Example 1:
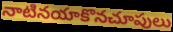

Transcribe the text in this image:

నాటినయాకొనచూపులు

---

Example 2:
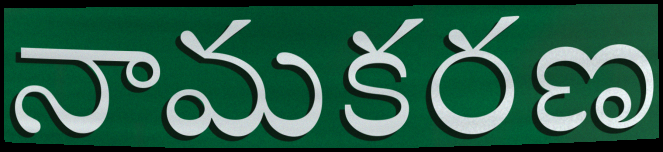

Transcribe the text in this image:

నామకరణ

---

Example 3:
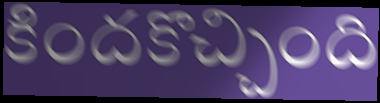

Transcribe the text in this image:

కిందకొచ్చింది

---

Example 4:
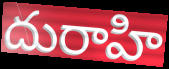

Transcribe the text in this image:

దురాహి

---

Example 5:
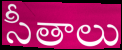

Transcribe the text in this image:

సీతాలు